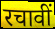
रचावीं